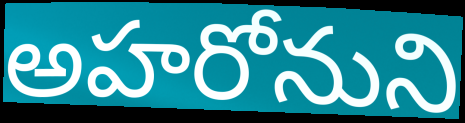
అహరోనుని